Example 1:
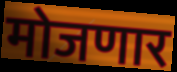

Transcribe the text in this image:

मोजणार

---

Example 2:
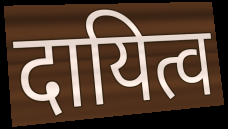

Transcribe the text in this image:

दायित्व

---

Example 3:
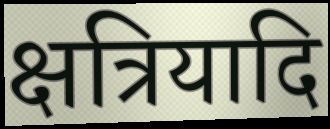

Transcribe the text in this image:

क्षत्रियादि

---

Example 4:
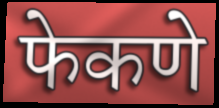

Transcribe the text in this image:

फेकणे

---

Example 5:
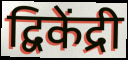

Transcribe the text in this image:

द्विकेंद्री